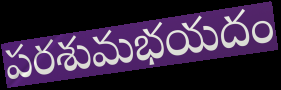
పరశుమభయదం